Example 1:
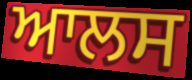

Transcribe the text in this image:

ਆਲਸ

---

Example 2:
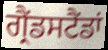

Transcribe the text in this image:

ਗ੍ਰੈਂਡਸਟੈਂਡਾਂ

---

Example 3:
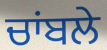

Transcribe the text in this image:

ਚਾਂਬਲੇ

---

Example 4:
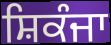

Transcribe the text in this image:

ਸ਼ਿਕੰਜਾ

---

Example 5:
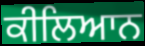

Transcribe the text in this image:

ਕੀਲਿਆਨ